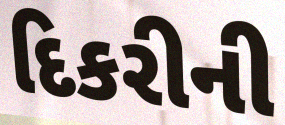
દિકરીની